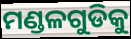
ମଣ୍ଡଳଗୁଡିକୁ